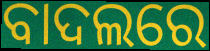
ବାଦଲରେ